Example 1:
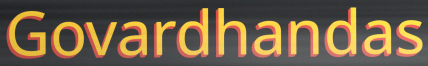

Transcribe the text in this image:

Govardhandas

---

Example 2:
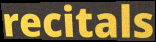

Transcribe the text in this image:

recitals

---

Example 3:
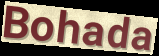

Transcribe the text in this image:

Bohada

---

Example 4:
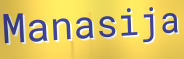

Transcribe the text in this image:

Manasija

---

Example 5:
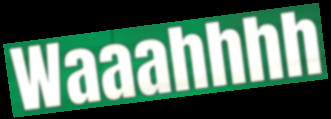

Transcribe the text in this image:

Waaahhhh